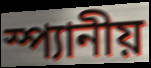
স্প্যানীয়